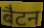
बैटन